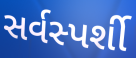
સર્વસ્પર્શી